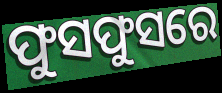
ଫୁସଫୁସରେ